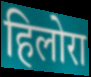
हिलोरा